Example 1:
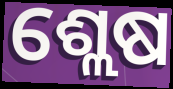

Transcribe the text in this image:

ଶ୍ଲେଷ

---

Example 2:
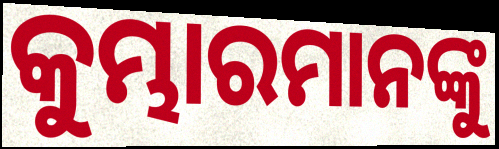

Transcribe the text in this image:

କୁମ୍ଭାରମାନଙ୍କୁ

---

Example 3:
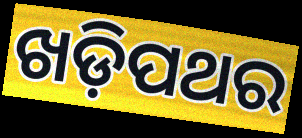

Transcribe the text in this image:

ଖଡ଼ିପଥର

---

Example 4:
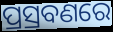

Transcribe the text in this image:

ପ୍ରସ୍ରବଣରେ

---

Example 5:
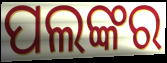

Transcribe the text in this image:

ପଲଙ୍କର